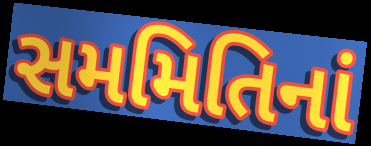
સમમિતિનાં